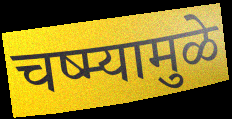
चष्म्यामुळे